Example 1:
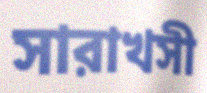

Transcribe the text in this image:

সারাখসী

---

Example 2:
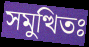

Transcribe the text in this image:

সমুত্থিতঃ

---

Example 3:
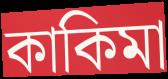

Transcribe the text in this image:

কাকিমা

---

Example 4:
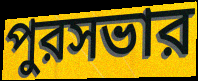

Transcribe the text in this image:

পুরসভার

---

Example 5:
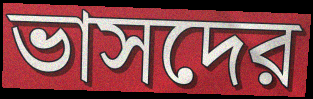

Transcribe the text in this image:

ভাসদের